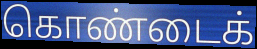
கொண்டைக்